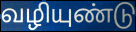
வழியுண்டு